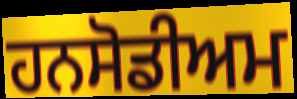
ਹਨਸੋਡੀਅਮ